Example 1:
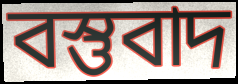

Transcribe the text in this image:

বস্তুবাদ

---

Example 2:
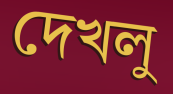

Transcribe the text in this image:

দেখলু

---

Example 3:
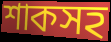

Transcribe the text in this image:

শাকসহ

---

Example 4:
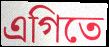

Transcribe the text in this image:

এগিতে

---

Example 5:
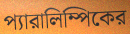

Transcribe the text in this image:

প্যারালিম্পিকের